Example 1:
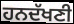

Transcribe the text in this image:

ਹਨਦੱਖਣੀ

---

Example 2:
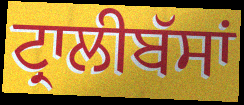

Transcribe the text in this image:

ਟ੍ਰਾਲੀਬੱਸਾਂ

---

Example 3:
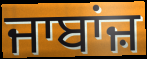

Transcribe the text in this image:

ਜਾਬਾਂਜ਼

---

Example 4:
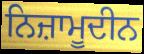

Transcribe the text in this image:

ਨਿਜ਼ਾਮੂਦੀਨ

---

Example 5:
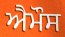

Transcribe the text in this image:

ਐਮੌਸ